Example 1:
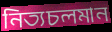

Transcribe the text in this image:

নিত্যচলমান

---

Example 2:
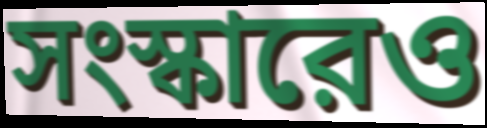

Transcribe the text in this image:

সংস্কারেও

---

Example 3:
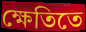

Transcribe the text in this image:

ক্ষেতিতে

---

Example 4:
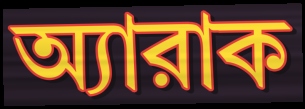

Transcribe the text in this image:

অ্যারাক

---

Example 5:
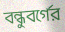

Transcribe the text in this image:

বন্ধুবর্গের